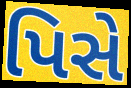
પિસે